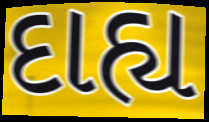
દાહ્ય